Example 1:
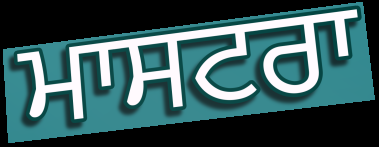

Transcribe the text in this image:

ਮਾਸਟਰਾ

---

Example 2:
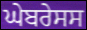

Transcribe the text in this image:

ਘੇਬਰੇਸਸ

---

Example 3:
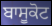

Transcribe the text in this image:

ਬਾਸੂਕੋਟ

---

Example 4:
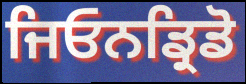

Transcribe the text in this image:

ਜਿਓਨਡ੍ਰਿਡੋ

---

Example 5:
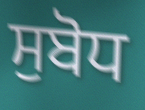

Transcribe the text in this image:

ਸੁਬੋਧ